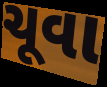
ચૂવા